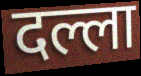
दल्ला